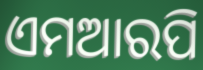
ଏମଆରପି